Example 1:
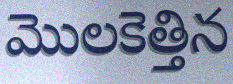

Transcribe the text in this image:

మొలకెత్తిన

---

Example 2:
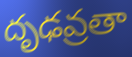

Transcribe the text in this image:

దృఢవ్రతా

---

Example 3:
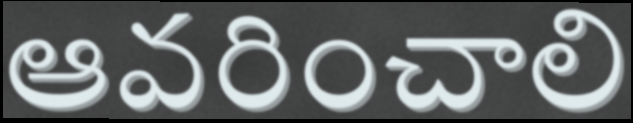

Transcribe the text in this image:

ఆవరించాలి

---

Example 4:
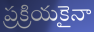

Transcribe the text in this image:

ప్రక్రియకైనా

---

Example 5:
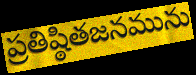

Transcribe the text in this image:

ప్రతిష్ఠితజనమును